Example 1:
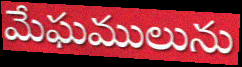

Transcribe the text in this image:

మేఘములును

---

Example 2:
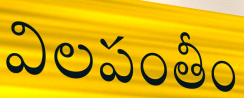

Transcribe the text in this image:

విలపంతీం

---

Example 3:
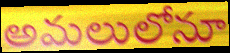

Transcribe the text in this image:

అమలులోనూ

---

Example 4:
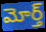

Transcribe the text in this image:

మోర్త్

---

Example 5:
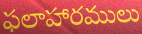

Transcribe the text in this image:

ఫలాహారములు